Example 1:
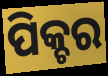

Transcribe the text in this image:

ପିକ୍ଚର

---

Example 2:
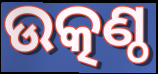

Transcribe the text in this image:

ଉତ୍କଣ୍ଠ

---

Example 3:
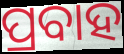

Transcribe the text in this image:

ପ୍ରବାହ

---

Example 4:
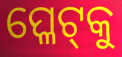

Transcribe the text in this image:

ପ୍ଳେଟ୍‌କୁ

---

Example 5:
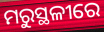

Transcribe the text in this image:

ମରୁସ୍ଥଳୀରେ